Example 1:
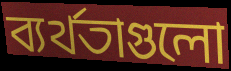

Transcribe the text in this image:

ব্যর্থতাগুলো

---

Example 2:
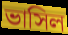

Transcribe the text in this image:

ভাসিল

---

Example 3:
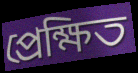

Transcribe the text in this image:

প্রেক্ষিত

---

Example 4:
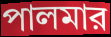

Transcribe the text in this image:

পালমার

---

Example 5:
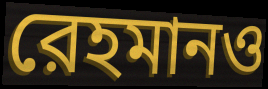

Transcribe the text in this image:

রেহমানও